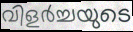
വിളർച്ചയുടെ